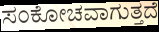
ಸಂಕೋಚವಾಗುತ್ತದೆ